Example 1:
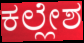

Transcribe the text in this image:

ಕಲ್ಲೇಶ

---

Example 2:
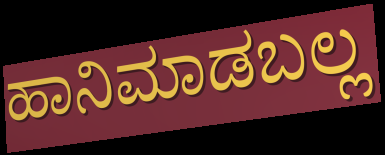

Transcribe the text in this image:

ಹಾನಿಮಾಡಬಲ್ಲ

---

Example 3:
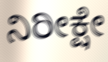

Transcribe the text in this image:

ನಿರೀಕ್ಷೇ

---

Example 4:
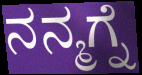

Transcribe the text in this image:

ನನ್ಮಗ್ನೆ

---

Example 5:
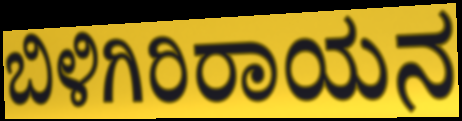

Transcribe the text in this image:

ಬಿಳಿಗಿರಿರಾಯನ